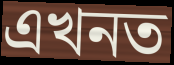
এখনত